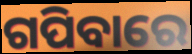
ଗପିବାରେ